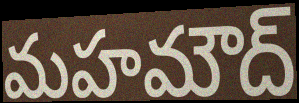
మహమౌద్